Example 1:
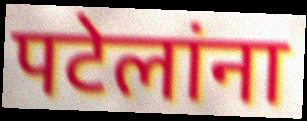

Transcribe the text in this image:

पटेलांना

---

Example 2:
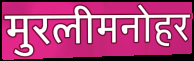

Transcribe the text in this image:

मुरलीमनोहर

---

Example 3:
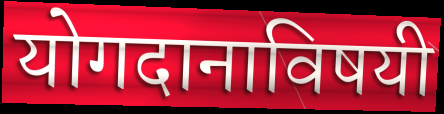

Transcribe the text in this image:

योगदानाविषयी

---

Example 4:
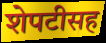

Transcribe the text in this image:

शेपटीसह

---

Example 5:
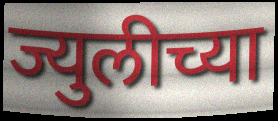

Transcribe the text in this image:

ज्युलीच्या